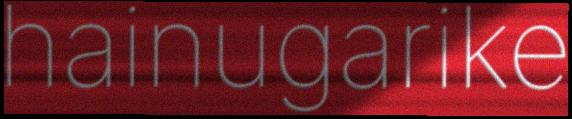
hainugarike